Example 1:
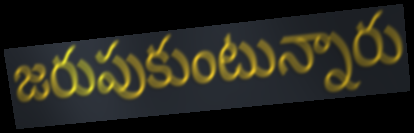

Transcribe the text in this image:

జరుపుకుంటున్నారు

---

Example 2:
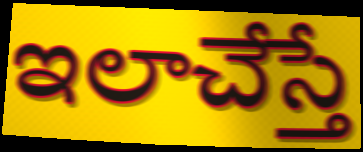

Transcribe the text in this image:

ఇలాచేస్తే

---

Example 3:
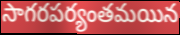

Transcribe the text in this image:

సాగరపర్యంతమయిన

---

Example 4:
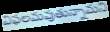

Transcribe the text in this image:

విఫలమవుతున్నామని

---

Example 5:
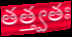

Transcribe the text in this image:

తత్త్వతః